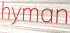
hyman